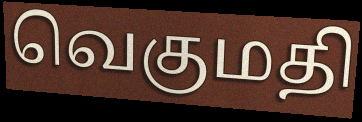
வெகுமதி